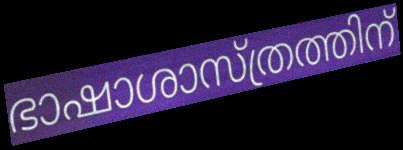
ഭാഷാശാസ്ത്രത്തിന്